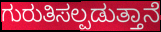
ಗುರುತಿಸಲ್ಪಡುತ್ತಾನೆ